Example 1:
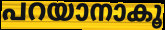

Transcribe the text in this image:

പറയാനാകൂ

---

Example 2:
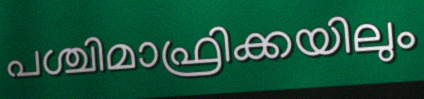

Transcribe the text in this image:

പശ്ചിമാഫ്രിക്കയിലും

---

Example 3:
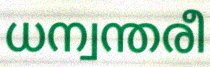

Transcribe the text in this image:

ധന്വന്തരീ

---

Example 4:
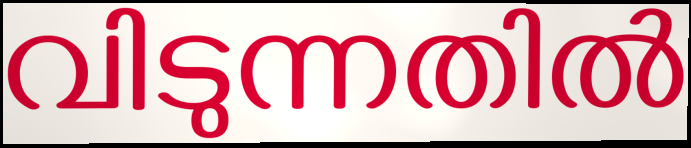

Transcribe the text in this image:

വിടുന്നതിൽ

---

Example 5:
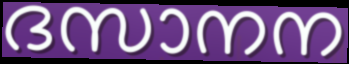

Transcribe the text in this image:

ദസാനന